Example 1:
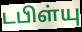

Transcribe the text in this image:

டபிள்யு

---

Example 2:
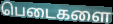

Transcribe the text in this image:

பெடைகளை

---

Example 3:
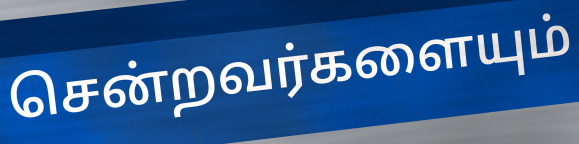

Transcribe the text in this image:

சென்றவர்களையும்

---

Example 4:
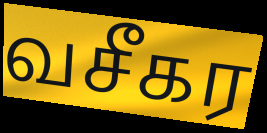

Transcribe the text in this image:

வசீகர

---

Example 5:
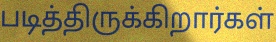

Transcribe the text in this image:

படித்திருக்கிறார்கள்